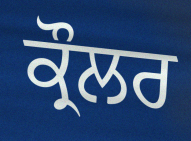
ਕ੍ਰੌਲਰ